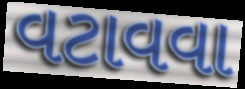
વટાવવા